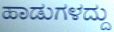
ಹಾಡುಗಳದ್ದು